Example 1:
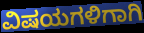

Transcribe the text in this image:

ವಿಷಯಗಳಿಗಾಗಿ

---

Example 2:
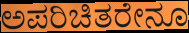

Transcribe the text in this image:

ಅಪರಿಚಿತರೇನೂ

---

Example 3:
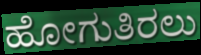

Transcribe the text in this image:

ಹೋಗುತಿರಲು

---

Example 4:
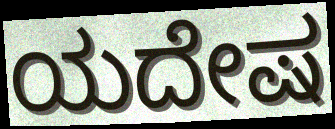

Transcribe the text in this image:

ಯದೇಷ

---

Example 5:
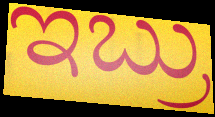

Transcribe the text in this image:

ಇಬ್ರು